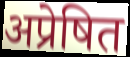
अप्रेषित